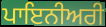
ਪਾਇਨੀਅਰੀ